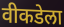
वीकडेला